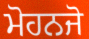
ਮੋਹਨਜੋ